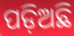
ପଡ଼ିଅଛି